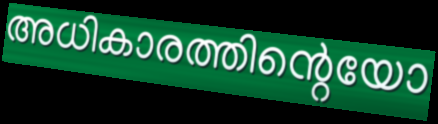
അധികാരത്തിന്റെയോ